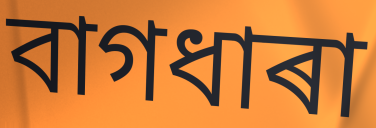
বাগধাৰা